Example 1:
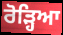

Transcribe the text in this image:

ਰੋੜ੍ਹਿਆ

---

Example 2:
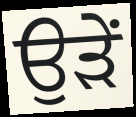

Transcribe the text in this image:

ਉੜੇਂ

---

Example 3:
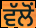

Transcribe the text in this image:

ਵੱਲੋਂ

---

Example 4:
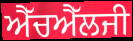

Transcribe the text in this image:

ਐੱਚਐੱਲਜੀ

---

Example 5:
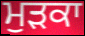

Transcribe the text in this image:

ਮੁੜਕਾ